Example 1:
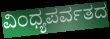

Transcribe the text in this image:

ವಿಂಧ್ಯಪರ್ವತದ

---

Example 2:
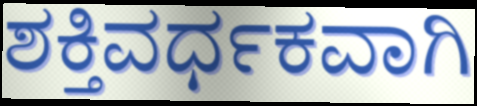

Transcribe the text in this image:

ಶಕ್ತಿವರ್ಧಕವಾಗಿ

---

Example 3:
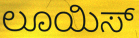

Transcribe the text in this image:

ಲೂಯಿಸ್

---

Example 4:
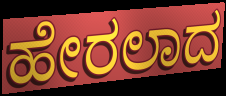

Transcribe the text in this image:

ಹೇರಲಾದ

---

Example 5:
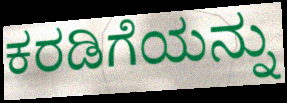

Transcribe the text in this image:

ಕರಡಿಗೆಯನ್ನು